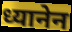
ध्यानेन